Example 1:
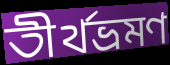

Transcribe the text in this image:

তীৰ্থভ্ৰমণ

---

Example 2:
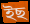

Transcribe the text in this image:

ইছ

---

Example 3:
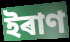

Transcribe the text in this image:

ইৰাণ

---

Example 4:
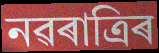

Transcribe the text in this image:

নৱৰাত্ৰিৰ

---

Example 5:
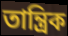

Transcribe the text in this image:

তান্ত্ৰিক